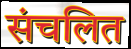
संचलित